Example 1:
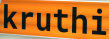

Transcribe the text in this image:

kruthi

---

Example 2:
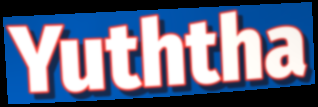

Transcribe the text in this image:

Yuththa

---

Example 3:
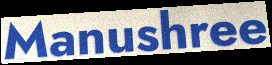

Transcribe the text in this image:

Manushree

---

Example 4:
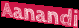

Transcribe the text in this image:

Aanandi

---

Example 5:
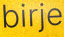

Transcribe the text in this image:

birje